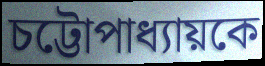
চট্টোপাধ্যায়কে